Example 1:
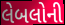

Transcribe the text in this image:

લેબલોની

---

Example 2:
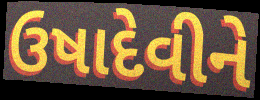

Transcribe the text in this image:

ઉષાદેવીને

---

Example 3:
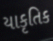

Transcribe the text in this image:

યાકૃતિક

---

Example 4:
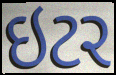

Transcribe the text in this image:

ઇટર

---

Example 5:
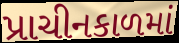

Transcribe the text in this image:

પ્રાચીનકાળમાં